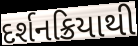
દર્શનક્રિયાથી